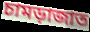
চামড়াজাত